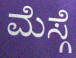
ಮೆಸ್ಗೆ